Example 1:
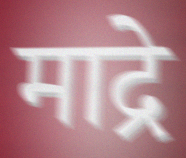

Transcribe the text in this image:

माद्रे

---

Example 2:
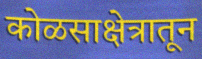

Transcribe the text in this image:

कोळसाक्षेत्रातून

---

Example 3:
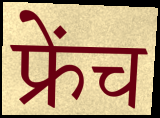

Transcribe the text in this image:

फ्रेंच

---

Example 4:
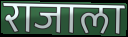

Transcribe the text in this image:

राजाला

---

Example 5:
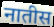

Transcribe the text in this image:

नातीस